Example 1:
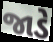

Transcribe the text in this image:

જાડે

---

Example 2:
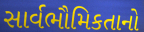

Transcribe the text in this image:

સાર્વભૌમિકતાનો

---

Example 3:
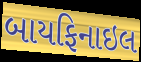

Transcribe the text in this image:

બાયફિનાઇલ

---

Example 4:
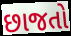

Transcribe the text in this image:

છાજતો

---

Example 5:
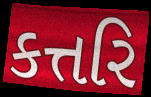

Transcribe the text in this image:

કત્તરિ